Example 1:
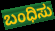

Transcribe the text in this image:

ಬಂಧಿಸು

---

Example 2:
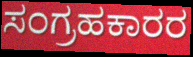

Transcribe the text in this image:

ಸಂಗ್ರಹಕಾರರ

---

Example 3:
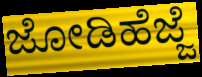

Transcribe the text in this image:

ಜೋಡಿಹೆಜ್ಜೆ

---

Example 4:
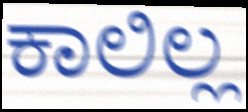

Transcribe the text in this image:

ಕಾಲಿಲ್ಲ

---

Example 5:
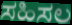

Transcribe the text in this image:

ಸಹಿಸಲ